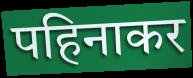
पहिनाकर